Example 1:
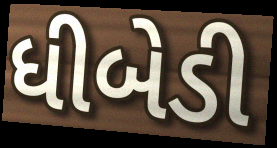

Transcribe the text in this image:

ધીબેડી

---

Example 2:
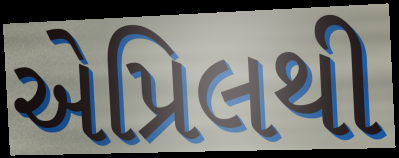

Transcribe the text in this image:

એપ્રિલથી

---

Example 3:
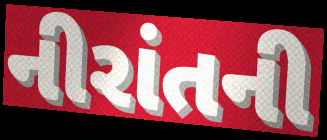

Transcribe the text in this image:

નીરાંતની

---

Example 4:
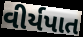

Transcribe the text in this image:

વીર્યપાત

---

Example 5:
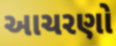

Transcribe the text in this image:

આચરણો